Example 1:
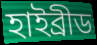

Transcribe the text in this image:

হাইব্ৰীড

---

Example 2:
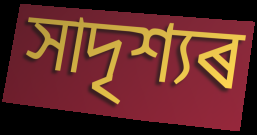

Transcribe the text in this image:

সাদৃশ্যৰ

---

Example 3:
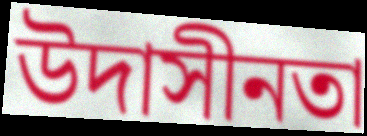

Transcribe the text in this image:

উদাসীনতা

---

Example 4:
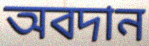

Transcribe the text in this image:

অবদান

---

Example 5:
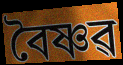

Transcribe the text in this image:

বৈষ্ণৱ